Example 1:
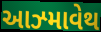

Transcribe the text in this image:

આઝ્માવેથ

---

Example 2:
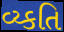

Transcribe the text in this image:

વ્ય્કતિ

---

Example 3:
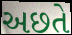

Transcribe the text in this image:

અછતે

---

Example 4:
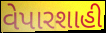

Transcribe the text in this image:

વેપારશાહી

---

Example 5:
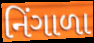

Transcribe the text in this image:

નિંગાળા